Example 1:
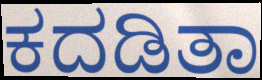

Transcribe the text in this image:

ಕದಡಿತಾ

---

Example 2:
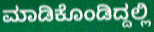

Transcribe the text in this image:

ಮಾಡಿಕೊಂಡಿದ್ದಲ್ಲಿ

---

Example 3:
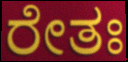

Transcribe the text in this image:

ರೇತಃ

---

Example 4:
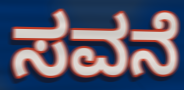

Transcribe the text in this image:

ಸವನೆ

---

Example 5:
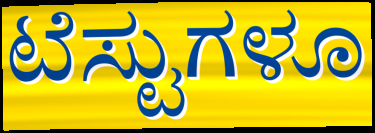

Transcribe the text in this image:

ಟೆಸ್ಟುಗಳೂ